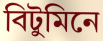
বিটুমিনে